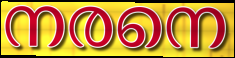
നരനെ